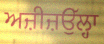
ਅਜ਼ੀਜ਼ਉੱਲ੍ਹਾ